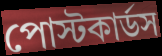
পোস্টকার্ডস